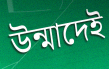
উন্মাদেই